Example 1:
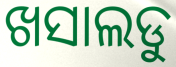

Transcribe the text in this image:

ଖସାଲଡୁ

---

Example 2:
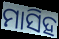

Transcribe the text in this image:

ମାସିହ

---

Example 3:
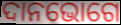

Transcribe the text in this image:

ଦାନଭୋଗେ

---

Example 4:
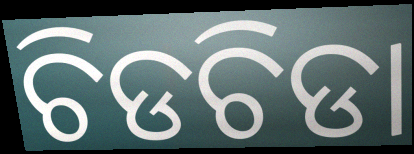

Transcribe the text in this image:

ଚିଡଚିଡା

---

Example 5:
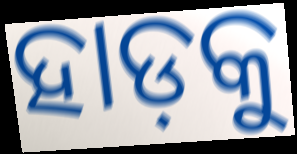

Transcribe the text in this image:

ହାଡ଼କୁ